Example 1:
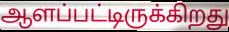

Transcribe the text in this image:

ஆளப்பட்டிருக்கிறது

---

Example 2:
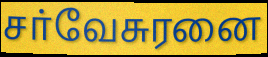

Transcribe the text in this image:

சர்வேசுரனை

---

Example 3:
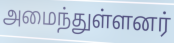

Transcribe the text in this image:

அமைந்துள்ளனர்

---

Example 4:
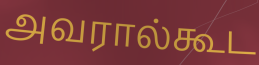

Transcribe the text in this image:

அவரால்கூட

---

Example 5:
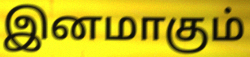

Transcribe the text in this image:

இனமாகும்